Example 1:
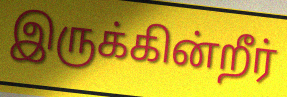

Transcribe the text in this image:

இருக்கின்றீர்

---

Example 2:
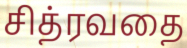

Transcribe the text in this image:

சித்ரவதை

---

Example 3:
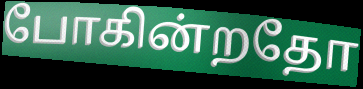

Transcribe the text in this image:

போகின்றதோ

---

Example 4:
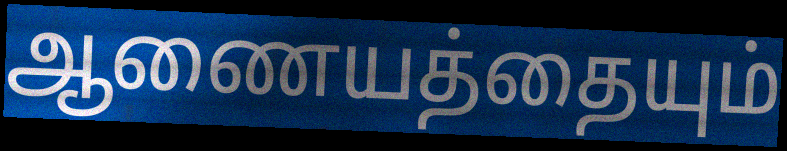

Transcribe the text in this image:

ஆணையத்தையும்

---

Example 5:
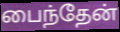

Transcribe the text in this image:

பைந்தேன்